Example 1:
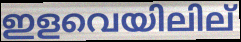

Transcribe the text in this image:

ഇളവെയിലില്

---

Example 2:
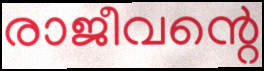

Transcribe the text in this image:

രാജീവന്റെ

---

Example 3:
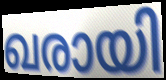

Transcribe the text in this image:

ഖരായി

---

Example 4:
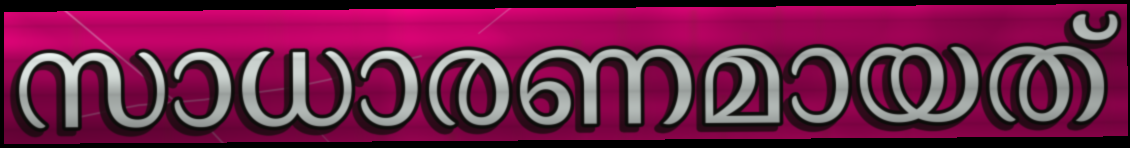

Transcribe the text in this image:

സാധാരണമായത്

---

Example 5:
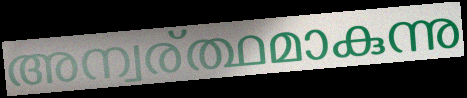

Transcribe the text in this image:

അന്വര്ത്ഥമാകുന്നു